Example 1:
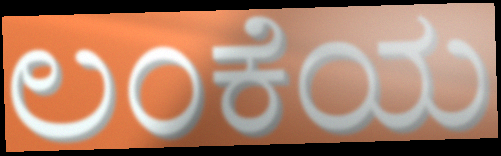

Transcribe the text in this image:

ಲಂಕೆಯ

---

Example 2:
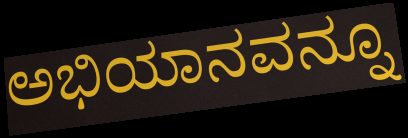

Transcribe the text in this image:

ಅಭಿಯಾನವನ್ನೂ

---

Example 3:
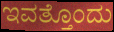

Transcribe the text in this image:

ಇವತ್ತೊಂದು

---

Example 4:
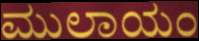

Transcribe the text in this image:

ಮುಲಾಯಂ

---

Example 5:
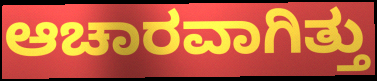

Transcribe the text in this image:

ಆಚಾರವಾಗಿತ್ತು